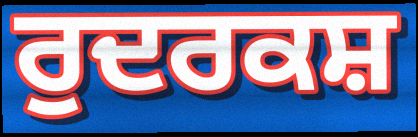
ਰੁਦਰਕਸ਼